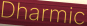
Dharmic